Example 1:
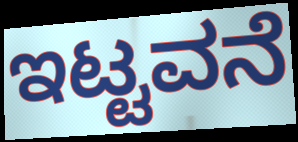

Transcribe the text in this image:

ಇಟ್ಟವನೆ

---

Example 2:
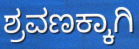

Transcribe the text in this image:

ಶ್ರವಣಕ್ಕಾಗಿ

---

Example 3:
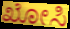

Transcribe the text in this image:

ಖೋಸಿ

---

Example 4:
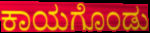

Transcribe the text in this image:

ಕಾಯಗೊಂಡು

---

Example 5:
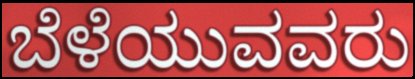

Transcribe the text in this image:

ಬೆಳೆಯುವವರು